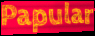
Papular